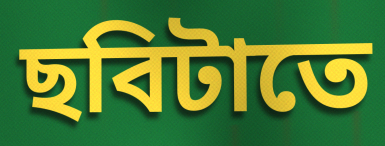
ছবিটাতে